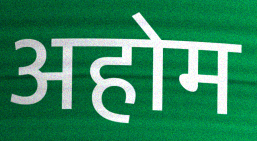
अहोम